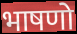
भाषणो